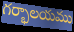
గర్భాలయము